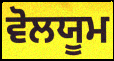
ਵੋਲਯੂਮ